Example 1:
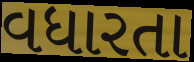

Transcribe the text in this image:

વધારતા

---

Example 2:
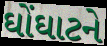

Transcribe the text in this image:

ઘોંઘાટને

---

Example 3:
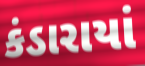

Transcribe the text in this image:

કંડારાયાં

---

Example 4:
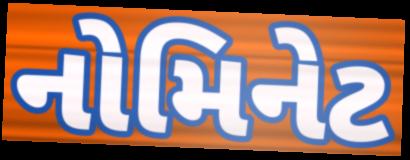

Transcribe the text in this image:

નોમિનેટ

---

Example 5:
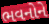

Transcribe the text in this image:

ભવનોને